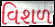
વિશળ